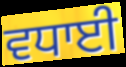
ਵਧਾਈ